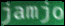
jamjo